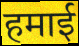
हमाई